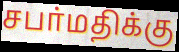
சபர்மதிக்கு